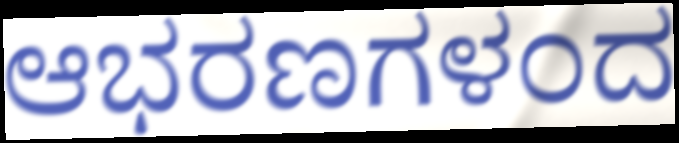
ಆಭರಣಗಳಂದ